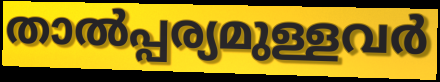
താൽപ്പര്യമുള്ളവർ